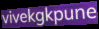
vivekgkpune